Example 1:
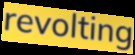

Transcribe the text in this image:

revolting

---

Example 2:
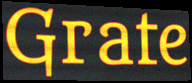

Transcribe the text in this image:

Grate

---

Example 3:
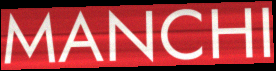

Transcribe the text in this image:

MANCHI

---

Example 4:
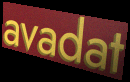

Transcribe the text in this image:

avadat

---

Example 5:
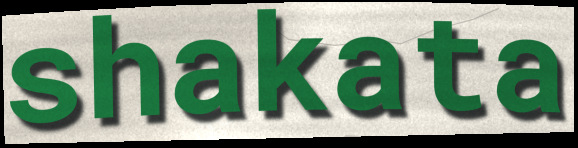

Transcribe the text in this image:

shakata